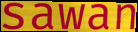
sawan